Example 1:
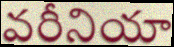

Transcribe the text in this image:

వరీనియా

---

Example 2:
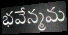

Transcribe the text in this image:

భవేన్మమ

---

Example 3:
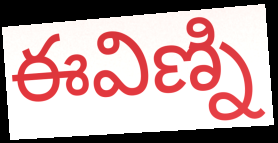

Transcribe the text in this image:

ఈవిణ్ని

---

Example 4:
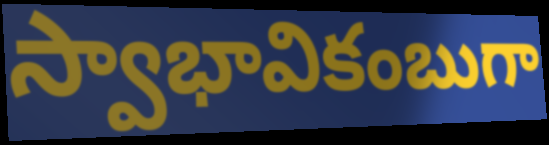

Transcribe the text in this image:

స్వాభావికంబుగా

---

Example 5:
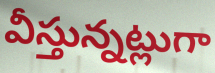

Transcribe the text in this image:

వీస్తున్నట్లుగా